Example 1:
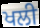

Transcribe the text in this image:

ਖਲੀ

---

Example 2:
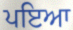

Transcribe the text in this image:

ਪਇਆ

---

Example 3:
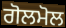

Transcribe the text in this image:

ਗੋਲਮੋਲ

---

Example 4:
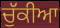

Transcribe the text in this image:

ਚੁੱਕੀਆ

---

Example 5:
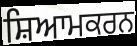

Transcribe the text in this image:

ਸ਼ਿਆਮਕਰਨ